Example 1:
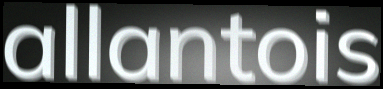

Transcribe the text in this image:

allantois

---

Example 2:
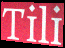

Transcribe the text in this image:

Tili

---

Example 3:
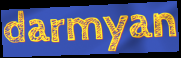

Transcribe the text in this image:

darmyan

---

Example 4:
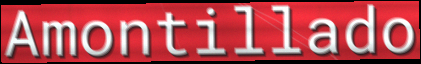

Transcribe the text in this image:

Amontillado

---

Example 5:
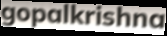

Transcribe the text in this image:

gopalkrishna